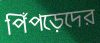
পিঁপড়েদের